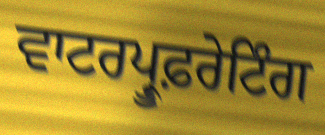
ਵਾਟਰਪ੍ਰੂਫ਼ਰੇਟਿੰਗ